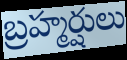
బ్రహ్మర్షులు